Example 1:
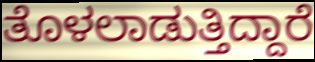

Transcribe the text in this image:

ತೊಳಲಾಡುತ್ತಿದ್ದಾರೆ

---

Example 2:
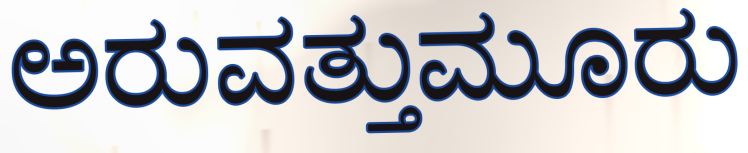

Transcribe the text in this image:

ಅರುವತ್ತುಮೂರು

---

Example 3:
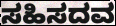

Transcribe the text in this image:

ಸಹಿಸದವ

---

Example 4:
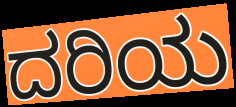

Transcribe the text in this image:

ದರಿಯ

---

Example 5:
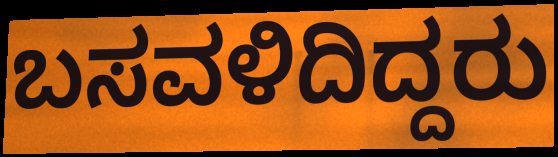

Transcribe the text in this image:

ಬಸವಳಿದಿದ್ದರು